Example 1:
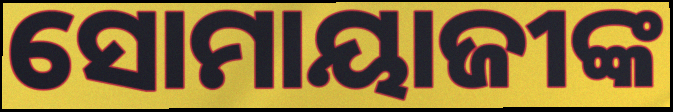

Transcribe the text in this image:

ସୋମାୟାଜୀଙ୍କ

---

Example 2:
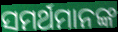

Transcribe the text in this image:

ସମର୍ଥମାନଙ୍କ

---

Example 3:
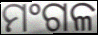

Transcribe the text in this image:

ମଂଗଳ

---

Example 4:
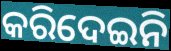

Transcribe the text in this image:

କରିଦେଇନି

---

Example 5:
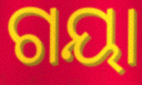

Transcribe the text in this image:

ଗୟା